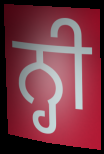
ਨ੍ਹੀ